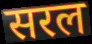
सरल